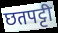
छतपट्टी